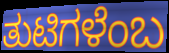
ತುಟಿಗಳೆಂಬ